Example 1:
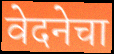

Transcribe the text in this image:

वेदनेचा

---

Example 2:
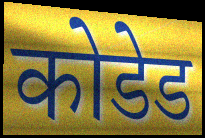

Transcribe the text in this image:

कोडेड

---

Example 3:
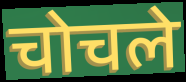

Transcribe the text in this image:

चोचले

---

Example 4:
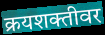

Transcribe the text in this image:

क्रयशक्तीवर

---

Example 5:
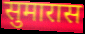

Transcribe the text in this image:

सुमारास